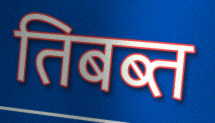
तिबब्त